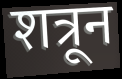
शत्रून